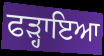
ਫੜ੍ਹਾਇਆ